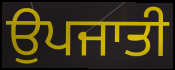
ਉਪਜਾਤੀ